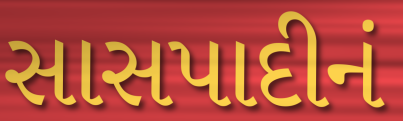
સાસપાદીનં